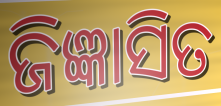
ଜିଜ୍ଞାସିତ